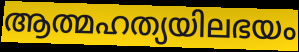
ആത്മഹത്യയിലഭയം